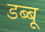
डब्बू